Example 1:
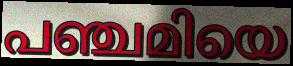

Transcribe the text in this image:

പഞ്ചമിയെ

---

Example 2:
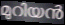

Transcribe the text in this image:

മുറിയൻ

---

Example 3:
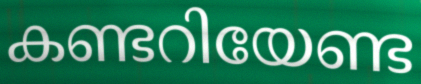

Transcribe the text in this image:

കണ്ടറിയേണ്ട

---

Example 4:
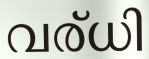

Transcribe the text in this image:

വര്ധി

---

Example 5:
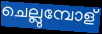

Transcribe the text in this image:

ചെല്ലുമ്പോള്